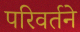
परिवर्तने